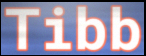
Tibb